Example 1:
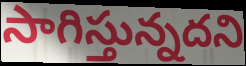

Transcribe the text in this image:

సాగిస్తున్నదని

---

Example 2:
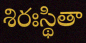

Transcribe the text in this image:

శిరఃస్థితా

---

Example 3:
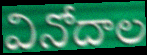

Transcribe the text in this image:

వినోదాల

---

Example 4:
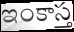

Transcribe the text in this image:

ఇంకాస్త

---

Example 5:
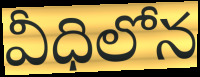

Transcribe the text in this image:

వీధిలోన